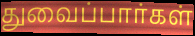
துவைப்பார்கள்